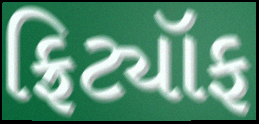
ફ્રિટ્યૉફ